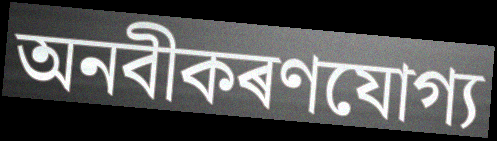
অনবীকৰণযোগ্য